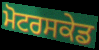
ਮੋਟਰਸਕੇਡ